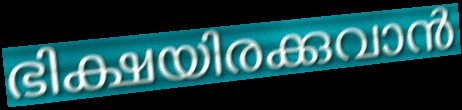
ഭിക്ഷയിരക്കുവാൻ